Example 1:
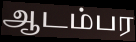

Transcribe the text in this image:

ஆடம்பர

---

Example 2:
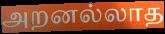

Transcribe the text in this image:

அறனல்லாத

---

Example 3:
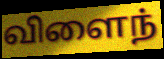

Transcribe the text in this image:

விளைந்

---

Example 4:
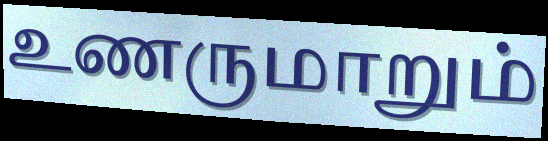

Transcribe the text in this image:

உணருமாறும்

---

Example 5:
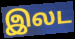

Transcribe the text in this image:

இலட